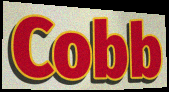
Cobb